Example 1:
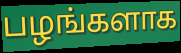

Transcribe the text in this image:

பழங்களாக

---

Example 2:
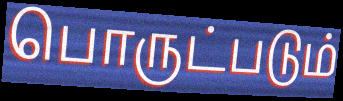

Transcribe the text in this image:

பொருட்படும்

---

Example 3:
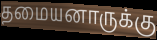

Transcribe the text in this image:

தமையனாருக்கு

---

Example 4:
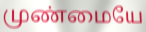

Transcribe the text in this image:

முண்மையே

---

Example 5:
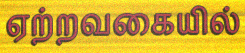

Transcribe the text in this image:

ஏற்றவகையில்